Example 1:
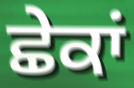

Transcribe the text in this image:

ਛੇਕਾਂ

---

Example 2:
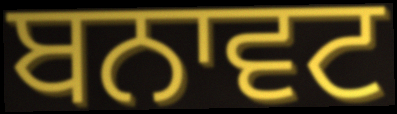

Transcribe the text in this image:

ਬਨਾਵਟ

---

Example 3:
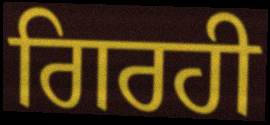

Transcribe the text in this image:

ਗਿਰਹੀ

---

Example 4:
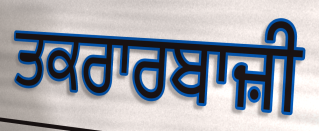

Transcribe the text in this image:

ਤਕਰਾਰਬਾਜ਼ੀ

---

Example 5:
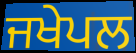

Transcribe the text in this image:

ਜਖੇਪਲ